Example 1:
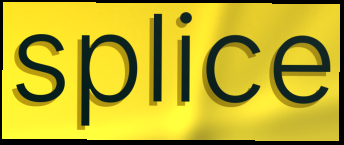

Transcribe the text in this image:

splice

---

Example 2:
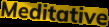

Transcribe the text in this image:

Meditative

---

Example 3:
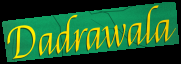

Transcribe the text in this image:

Dadrawala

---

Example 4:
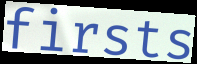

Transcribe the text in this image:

firsts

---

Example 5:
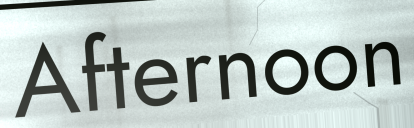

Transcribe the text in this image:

Afternoon